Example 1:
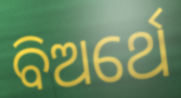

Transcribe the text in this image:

ବିଅର୍ଥେ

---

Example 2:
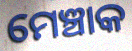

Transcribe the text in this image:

ମେଞ୍ଚାକ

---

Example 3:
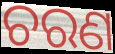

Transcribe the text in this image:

ଚରଣ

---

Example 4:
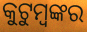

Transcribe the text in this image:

କୁଟୁମ୍ବଙ୍କର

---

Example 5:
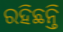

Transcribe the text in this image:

ରହିଛନ୍ତି